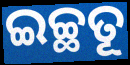
ଇଚ୍ଛତୂ